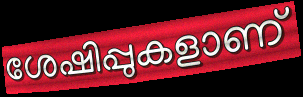
ശേഷിപ്പുകളാണ്